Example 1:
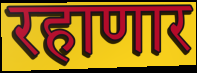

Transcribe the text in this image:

रहाणार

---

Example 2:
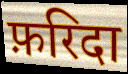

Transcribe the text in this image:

फ़रिदा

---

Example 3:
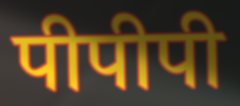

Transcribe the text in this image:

पीपीपी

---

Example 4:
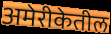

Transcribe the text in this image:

अमेरीकेतील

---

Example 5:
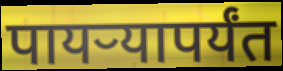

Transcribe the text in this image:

पायऱ्यापर्यंत